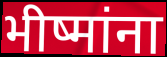
भीष्मांना